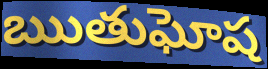
ఋతుఘోష